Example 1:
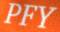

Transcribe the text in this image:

PFY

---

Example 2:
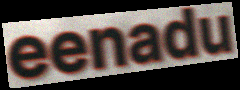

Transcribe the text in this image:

eenadu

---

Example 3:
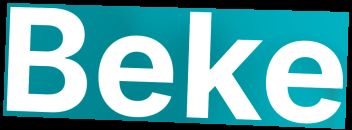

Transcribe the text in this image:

Beke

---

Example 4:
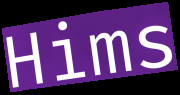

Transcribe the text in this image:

Hims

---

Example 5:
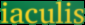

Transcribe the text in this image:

iaculis